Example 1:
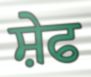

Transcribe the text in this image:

ਸ਼ੇਫ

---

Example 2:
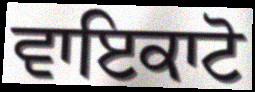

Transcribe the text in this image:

ਵਾਇਕਾਟੋ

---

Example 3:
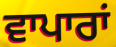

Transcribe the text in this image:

ਵਾਪਾਰਾਂ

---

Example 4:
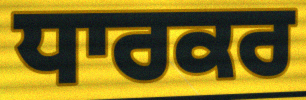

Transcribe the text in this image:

ਧਾਰਕਰ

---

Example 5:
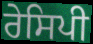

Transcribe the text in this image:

ਰੇਸਿਪੀ